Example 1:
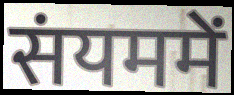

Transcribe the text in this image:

संयममें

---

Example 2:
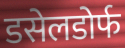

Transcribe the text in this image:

डसेलडोर्फ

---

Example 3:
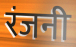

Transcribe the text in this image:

रंजनी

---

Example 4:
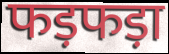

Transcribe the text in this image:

फड़फड़ा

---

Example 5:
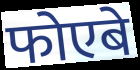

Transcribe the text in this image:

फोएबे